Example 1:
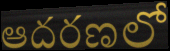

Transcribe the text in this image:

ఆదరణలో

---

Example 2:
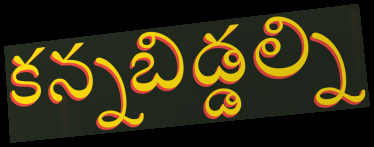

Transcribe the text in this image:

కన్నబిడ్డల్ని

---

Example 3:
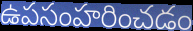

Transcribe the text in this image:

ఉపసంహరించడం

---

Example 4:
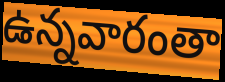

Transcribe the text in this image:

ఉన్నవారంతా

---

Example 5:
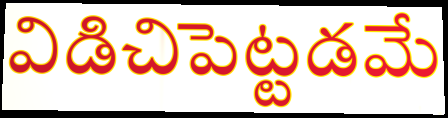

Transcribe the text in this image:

విడిచిపెట్టడమే